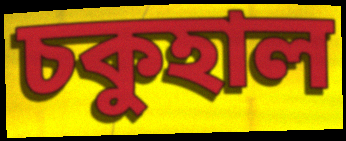
চকুহাল